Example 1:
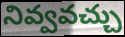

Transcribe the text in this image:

నివ్వవచ్చు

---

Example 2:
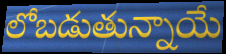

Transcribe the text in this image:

లోబడుతున్నాయే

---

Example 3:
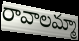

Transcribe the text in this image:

రావాలమ్మా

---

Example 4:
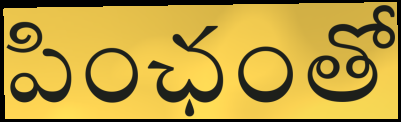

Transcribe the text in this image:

పింఛంతో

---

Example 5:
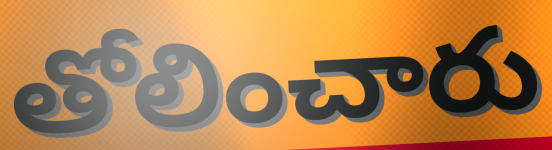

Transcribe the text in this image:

తోలించారు